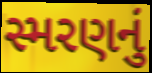
સ્મરણનું